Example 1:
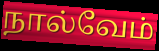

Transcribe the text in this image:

நால்வேம்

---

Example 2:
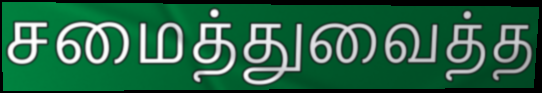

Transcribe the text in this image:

சமைத்துவைத்த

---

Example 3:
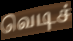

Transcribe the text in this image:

வெடிச்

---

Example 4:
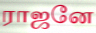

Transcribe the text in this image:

ராஜனே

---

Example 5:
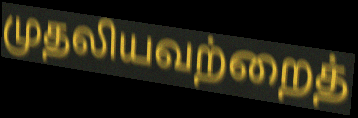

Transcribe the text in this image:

முதலியவற்றைத்